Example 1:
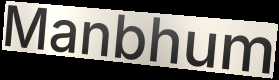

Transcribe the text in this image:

Manbhum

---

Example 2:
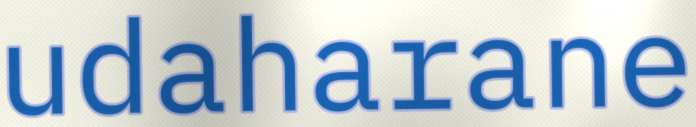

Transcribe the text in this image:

udaharane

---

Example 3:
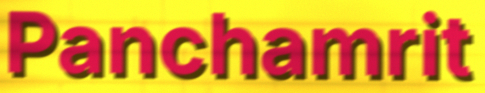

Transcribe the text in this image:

Panchamrit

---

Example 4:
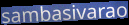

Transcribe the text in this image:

sambasivarao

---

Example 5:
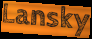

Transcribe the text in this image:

Lansky